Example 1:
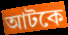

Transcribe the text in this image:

আটকে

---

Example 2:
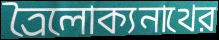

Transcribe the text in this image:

ত্রৈলোক্যনাথের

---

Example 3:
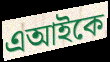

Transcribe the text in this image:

এআইকে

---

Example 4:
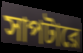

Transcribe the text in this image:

সাপটারে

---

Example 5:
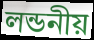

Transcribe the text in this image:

লন্ডনীয়